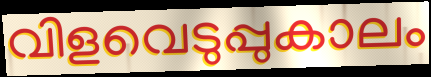
വിളവെടുപ്പുകാലം